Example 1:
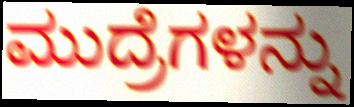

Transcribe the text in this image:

ಮುದ್ರೆಗಳನ್ನು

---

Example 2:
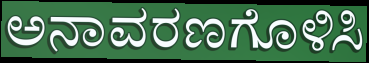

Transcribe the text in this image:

ಅನಾವರಣಗೊಳಿಸಿ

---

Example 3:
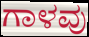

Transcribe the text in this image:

ಗಾಳವು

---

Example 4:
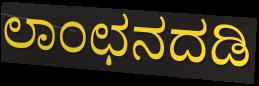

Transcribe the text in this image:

ಲಾಂಛನದಡಿ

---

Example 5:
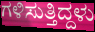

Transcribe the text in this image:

ಗಳಿಸುತ್ತಿದ್ದಳು